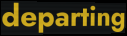
departing